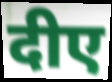
दीए